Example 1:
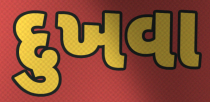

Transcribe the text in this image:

દુખવા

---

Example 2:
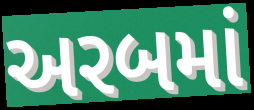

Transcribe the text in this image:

અરબમાં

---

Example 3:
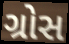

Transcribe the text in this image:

ગ્રોસ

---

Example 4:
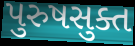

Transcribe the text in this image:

પુરુષસુક્ત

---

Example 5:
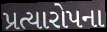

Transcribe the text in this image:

પ્રત્યારોપના